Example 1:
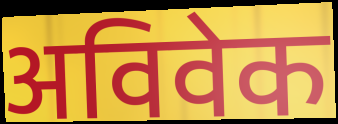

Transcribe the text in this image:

अविवेक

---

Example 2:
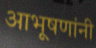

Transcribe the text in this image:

आभूषणांनी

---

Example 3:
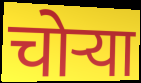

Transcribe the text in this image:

चोऱ्या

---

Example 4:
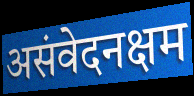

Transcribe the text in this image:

असंवेदनक्षम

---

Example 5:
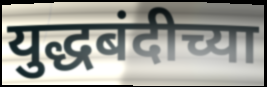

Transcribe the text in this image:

युद्धबंदीच्या